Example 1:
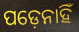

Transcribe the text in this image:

ପଡ଼େନାହିଁ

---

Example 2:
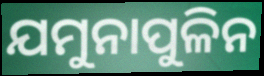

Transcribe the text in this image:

ଯମୁନାପୁଳିନ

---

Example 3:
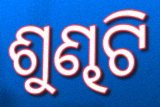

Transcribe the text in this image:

ଶୁଣ୍ଢଟି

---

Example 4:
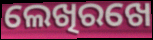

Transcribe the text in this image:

ଲେଖିରଖେ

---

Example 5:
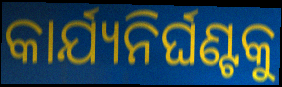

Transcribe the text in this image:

କାର୍ଯ୍ୟନିର୍ଘଣ୍ଟକୁ